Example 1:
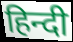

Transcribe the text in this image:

हिन्‍दी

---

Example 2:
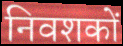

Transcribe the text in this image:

निवशकों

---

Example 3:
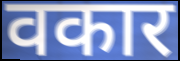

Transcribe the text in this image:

वकार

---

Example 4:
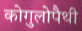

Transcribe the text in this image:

कोगुलोपैथी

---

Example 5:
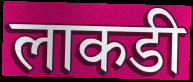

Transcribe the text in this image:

लाकडी